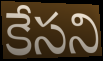
కేసని